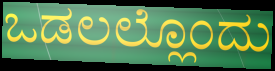
ಒಡಲಲ್ಲೊಂದು